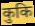
कुकि